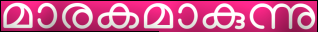
മാരകമാകുന്നു